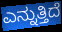
ಎನ್ನುತ್ತಿದೆ